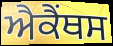
ਐਕੈਂਥਸ